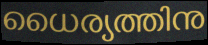
ധൈര്യത്തിനു